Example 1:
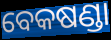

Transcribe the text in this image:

ବେକଷଣ୍ଡା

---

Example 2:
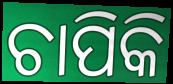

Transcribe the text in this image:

ଚାପିକି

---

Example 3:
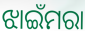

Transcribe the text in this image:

ଝାଇଁମରା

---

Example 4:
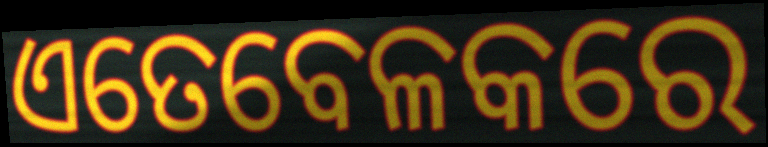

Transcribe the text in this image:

ଏତେବେଳକରେ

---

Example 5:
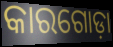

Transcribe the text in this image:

କାରଗୋଡ଼ା